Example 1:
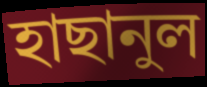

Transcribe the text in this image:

হাছানুল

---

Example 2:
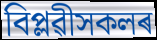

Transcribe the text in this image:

বিপ্লৱীসকলৰ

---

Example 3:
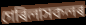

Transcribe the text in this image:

গেৰিলাসকলৰ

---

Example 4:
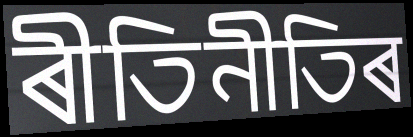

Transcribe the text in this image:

ৰীতিনীতিৰ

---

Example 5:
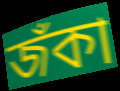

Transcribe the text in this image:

জঁকা